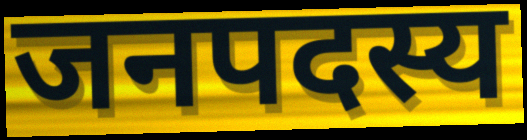
जनपदस्य